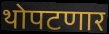
थोपटणार